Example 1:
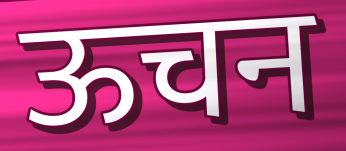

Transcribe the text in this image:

ऊचन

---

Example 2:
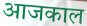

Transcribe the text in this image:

आजकाल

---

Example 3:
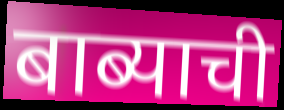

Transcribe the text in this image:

बाब्याची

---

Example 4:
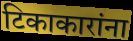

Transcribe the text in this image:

टिकाकारांना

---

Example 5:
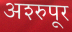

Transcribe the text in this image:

अश्रुपूर